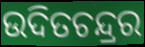
ଉଦିତଚନ୍ଦ୍ରର